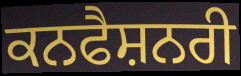
ਕਨਫੈਸ਼ਨਰੀ